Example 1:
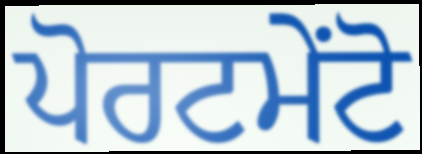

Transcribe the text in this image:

ਪੋਰਟਮੇਂਟੋ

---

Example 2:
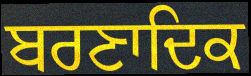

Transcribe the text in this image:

ਬਰਣਾਦਿਕ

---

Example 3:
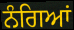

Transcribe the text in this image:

ਨੰਗਿਆਂ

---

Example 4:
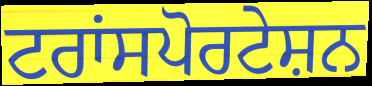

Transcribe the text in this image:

ਟਰਾਂਸਪੋਰਟੇਸ਼ਨ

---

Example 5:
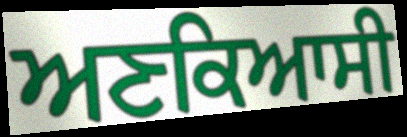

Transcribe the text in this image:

ਅਣਕਿਆਸੀ